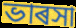
ভাৰসা